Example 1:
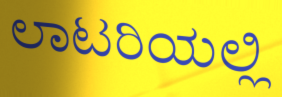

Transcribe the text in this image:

ಲಾಟರಿಯಲ್ಲಿ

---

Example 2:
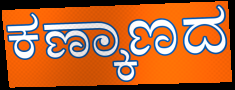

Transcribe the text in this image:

ಕಣ್ಕಾಣದ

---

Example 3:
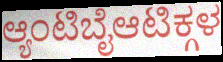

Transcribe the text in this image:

ಆ್ಯಂಟಿಬೈಆಟಿಕ್ಗಳ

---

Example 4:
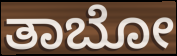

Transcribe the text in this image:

ತಾಬೋ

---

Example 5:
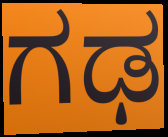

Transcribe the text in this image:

ಗಢ